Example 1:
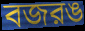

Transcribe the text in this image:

বজরঙ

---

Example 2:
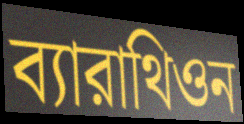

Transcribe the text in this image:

ব্যারাথিওন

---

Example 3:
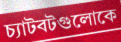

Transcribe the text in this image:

চ্যাটবটগুলোকে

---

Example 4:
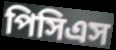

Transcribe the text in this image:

পিসিএস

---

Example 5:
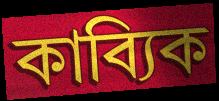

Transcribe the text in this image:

কাব্যিক